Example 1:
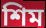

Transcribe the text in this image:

শিম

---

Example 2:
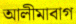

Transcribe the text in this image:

আলীমাবাগ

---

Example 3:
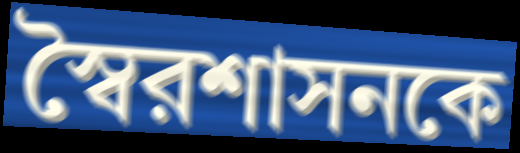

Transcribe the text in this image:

স্বৈরশাসনকে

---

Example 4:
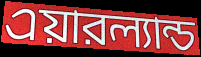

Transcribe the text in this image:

এয়ারল্যান্ড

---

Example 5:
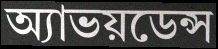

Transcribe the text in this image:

অ্যাভয়ডেন্স